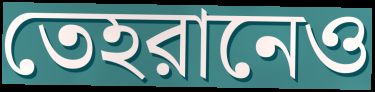
তেহরানেও